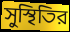
সুস্থিতির